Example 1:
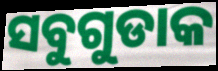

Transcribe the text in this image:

ସବୁଗୁଡାକ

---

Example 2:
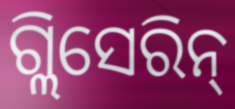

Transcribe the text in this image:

ଗ୍ଲିସେରିନ୍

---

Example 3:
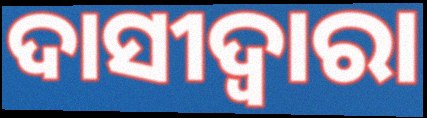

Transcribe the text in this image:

ଦାସୀଦ୍ୱାରା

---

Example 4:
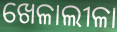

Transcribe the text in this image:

ଖେଳାଲୀଳା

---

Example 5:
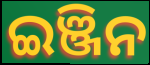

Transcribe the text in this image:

ଇଞ୍ଜିନ